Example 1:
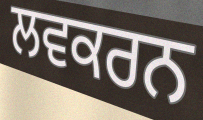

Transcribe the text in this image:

ਲਵਕਰਨ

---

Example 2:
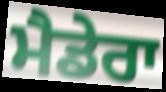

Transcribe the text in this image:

ਮੈਡੇਰਾ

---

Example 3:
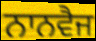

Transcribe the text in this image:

ਨਾਨਵੈਜ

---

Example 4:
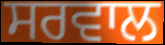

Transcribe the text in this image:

ਸਰਵਾਲ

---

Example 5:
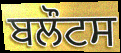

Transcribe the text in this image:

ਬਲੌਟਸ